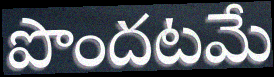
పొందటమే